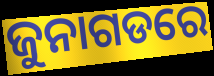
ଜୁନାଗଡରେ